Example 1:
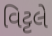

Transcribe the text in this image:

વિટ્ટલે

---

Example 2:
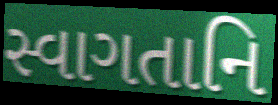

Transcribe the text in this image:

સ્વાગતાનિ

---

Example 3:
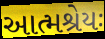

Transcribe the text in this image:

આત્મશ્રેયઃ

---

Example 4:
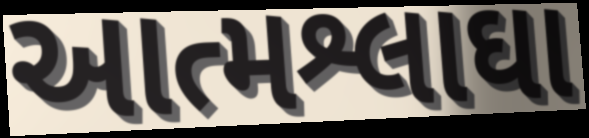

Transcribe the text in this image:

આત્મશ્લાઘા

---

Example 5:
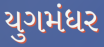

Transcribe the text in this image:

યુગમંધર